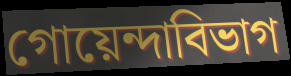
গোয়েন্দাবিভাগ